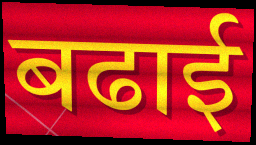
बढाई